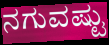
ನಗುವಷ್ಟು